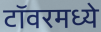
टॉवरमध्ये